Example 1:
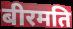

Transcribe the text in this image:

बीरमति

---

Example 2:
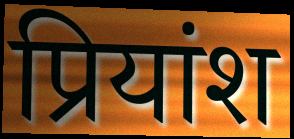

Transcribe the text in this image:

प्रियांश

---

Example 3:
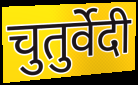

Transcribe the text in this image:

चुतुर्वेदी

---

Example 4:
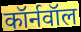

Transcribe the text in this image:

कॉर्नवॉल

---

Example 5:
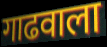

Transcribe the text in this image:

गाढवाला